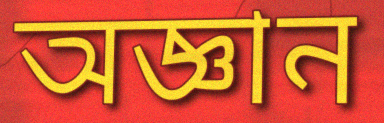
অজ্ঞান